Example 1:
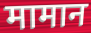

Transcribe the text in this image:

मामान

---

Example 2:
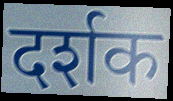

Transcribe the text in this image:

दर्शक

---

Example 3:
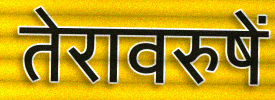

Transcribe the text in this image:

तेरावरुषें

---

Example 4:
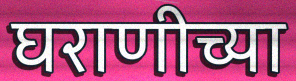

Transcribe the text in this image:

घराणीच्या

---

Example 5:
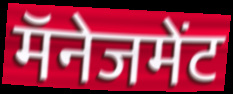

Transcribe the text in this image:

मॅनेजमेंट